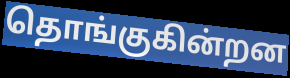
தொங்குகின்றன